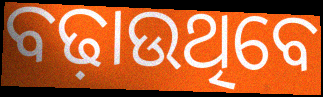
ବଢ଼ାଉଥିବେ